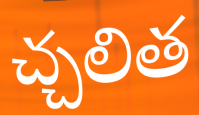
చ్చలిత